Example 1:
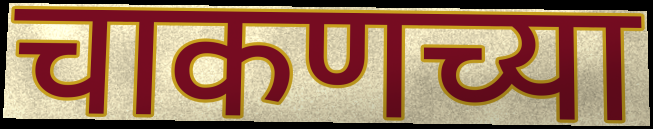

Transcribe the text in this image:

चाकणच्या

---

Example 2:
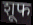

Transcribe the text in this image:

शूफ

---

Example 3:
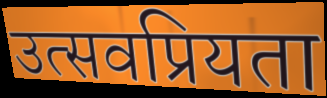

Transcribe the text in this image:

उत्सवप्रियता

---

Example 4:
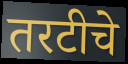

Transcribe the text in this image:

तरटीचे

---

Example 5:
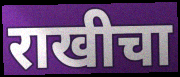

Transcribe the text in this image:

राखीचा